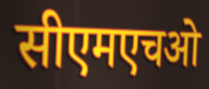
सीएमएचओ